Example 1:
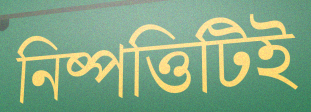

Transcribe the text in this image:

নিষ্পত্তিটিই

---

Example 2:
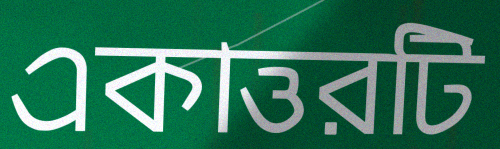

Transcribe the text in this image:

একাত্তরটি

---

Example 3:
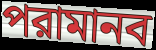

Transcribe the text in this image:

পরামানব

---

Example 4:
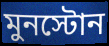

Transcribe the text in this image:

মুনস্টোন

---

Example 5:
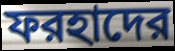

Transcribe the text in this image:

ফরহাদের